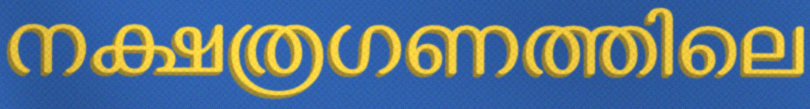
നക്ഷത്രഗണത്തിലെ